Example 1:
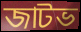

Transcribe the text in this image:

জাটভ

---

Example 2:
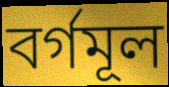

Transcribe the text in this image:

বৰ্গমূল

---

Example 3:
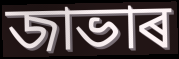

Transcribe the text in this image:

জাভাৰ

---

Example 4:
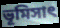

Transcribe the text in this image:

ভূমিসাৎ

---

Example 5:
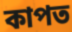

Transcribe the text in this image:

কাপত